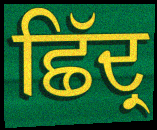
ਛਿੱਦ੍ਰ